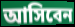
আসিবেন